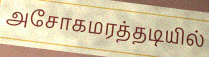
அசோகமரத்தடியில்